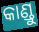
କାଣ୍ଡୁ